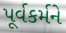
પૂર્વકર્મને